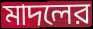
মাদলের